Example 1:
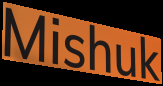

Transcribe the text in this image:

Mishuk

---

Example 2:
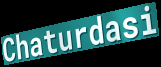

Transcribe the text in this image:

Chaturdasi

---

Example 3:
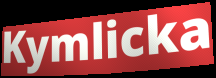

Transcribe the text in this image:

Kymlicka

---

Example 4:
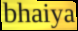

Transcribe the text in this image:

bhaiya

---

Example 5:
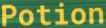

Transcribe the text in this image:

Potion